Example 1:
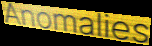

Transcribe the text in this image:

Anomalies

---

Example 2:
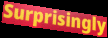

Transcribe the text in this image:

Surprisingly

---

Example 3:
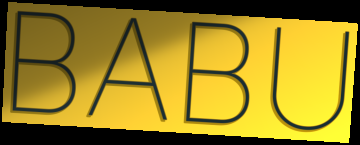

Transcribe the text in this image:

BABU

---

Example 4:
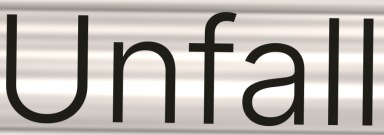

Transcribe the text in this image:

Unfall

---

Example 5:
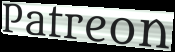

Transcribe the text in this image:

Patreon